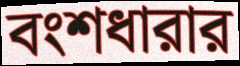
বংশধারার